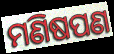
ମଣିଷପଣ